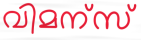
വിമന്സ്